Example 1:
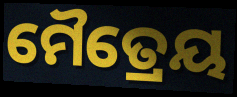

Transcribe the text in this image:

ମୈତ୍ରେୟ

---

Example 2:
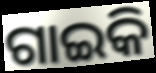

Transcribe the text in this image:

ଗାଇକି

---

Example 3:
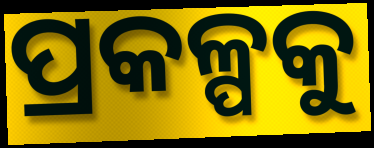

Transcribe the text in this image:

ପ୍ରକଳ୍ପକୁ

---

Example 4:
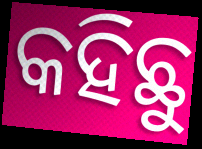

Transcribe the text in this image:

କହିଛୁ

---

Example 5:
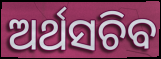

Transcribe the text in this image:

ଅର୍ଥସଚିବ